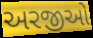
અરજીઓ